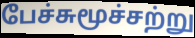
பேச்சுமூச்சற்று